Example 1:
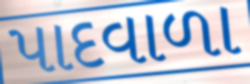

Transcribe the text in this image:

પાદવાળા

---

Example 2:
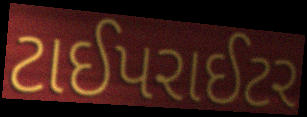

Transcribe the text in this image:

ટાઈપરાઈટર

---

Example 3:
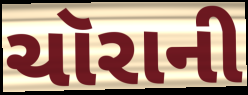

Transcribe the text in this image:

ચૉરાની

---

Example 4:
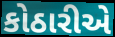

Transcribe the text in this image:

કોઠારીએ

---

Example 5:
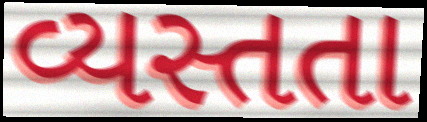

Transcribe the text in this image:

વ્યસ્તતા